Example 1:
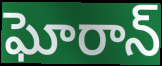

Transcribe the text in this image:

ఘోరాన్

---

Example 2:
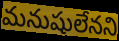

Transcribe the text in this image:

మనుషులేనని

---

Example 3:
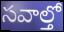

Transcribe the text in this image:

సవాల్తో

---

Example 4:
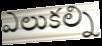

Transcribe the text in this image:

ఎలుకల్ని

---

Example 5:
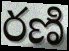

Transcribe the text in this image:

రణి